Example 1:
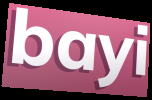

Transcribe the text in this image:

bayi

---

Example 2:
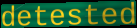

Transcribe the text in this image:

detested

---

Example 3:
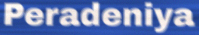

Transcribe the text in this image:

Peradeniya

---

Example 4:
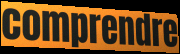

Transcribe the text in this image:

comprendre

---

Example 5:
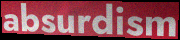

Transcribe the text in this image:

absurdism